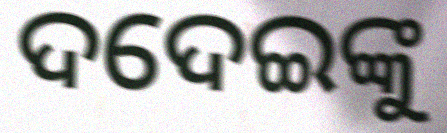
ଦଦେଇଙ୍କୁ